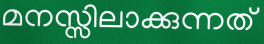
മനസ്സിലാക്കുന്നത്